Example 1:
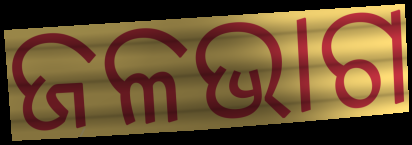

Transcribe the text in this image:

ଜଳଭାଗ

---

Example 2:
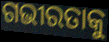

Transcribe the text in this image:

ଗଭୀରତାକୁ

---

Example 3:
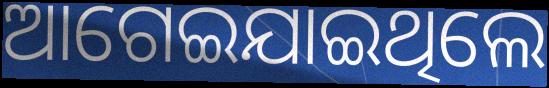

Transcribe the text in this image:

ଆଗେଇଯାଇଥିଲେ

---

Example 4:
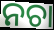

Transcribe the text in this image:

ନଚା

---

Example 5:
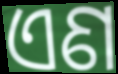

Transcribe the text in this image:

ଏଣ